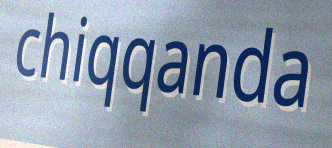
chiqqanda